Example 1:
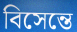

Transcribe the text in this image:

বিসেন্তে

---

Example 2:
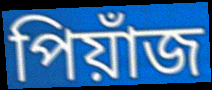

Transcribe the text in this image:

পিয়াঁজ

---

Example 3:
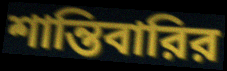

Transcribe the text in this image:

শান্তিবারির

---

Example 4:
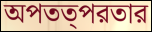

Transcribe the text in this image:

অপতত্পরতার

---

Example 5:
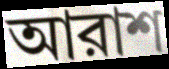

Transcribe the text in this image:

আরাশ